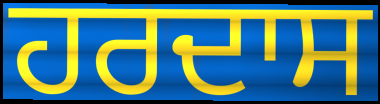
ਹਰਦਾਸ